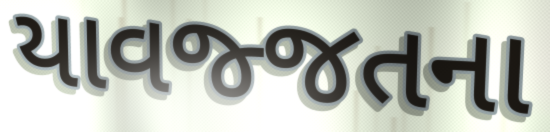
યાવજ્જતના